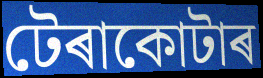
টেৰাকোটাৰ